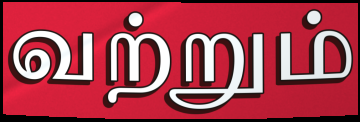
வற்றும்